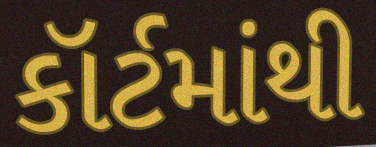
કૉર્ટમાંથી